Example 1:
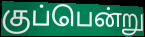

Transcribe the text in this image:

குப்பென்று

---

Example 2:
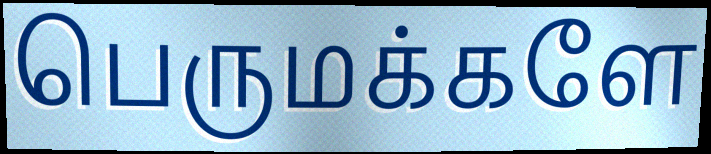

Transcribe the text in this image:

பெருமக்களே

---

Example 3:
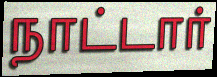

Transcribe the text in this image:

நாட்டார்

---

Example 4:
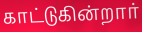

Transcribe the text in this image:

காட்டுகின்றார்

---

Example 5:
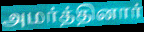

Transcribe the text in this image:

அமர்த்தினார்